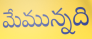
మేమున్నది